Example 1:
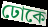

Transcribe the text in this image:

ঢোকে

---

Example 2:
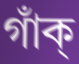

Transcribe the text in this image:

গাঁক্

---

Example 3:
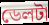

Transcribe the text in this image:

ডেলটা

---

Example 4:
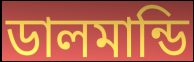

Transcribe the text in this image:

ডালমান্ডি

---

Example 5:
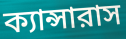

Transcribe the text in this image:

ক্যান্সারাস